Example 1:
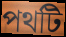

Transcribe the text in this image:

পথটি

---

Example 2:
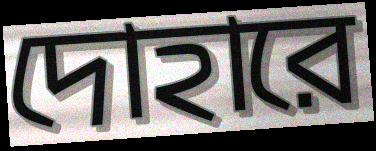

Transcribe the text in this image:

দোহারে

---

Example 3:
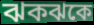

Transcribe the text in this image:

ঝকঝকে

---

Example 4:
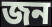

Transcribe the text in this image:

জন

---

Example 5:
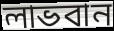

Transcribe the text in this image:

লাভবান